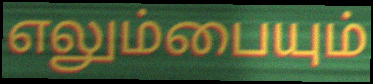
எலும்பையும்